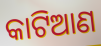
କାଟିଆଣ